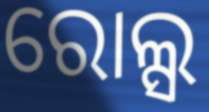
ରୋଲ୍ସ